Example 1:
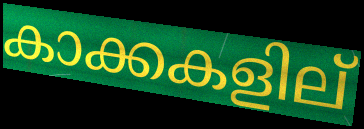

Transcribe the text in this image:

കാക്കകളില്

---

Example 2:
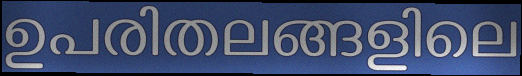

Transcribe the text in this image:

ഉപരിതലങ്ങളിലെ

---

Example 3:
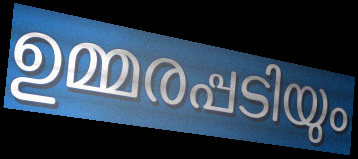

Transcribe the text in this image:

ഉമ്മരപ്പടിയും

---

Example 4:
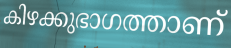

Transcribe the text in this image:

കിഴക്കുഭാഗത്താണ്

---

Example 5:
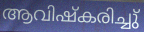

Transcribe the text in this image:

ആവിഷ്കരിച്ചു്